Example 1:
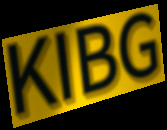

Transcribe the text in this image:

KIBG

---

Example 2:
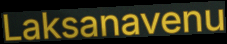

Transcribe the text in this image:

Laksanavenu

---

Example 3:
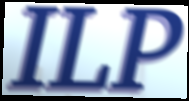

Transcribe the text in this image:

ILP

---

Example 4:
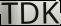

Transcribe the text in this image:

TDK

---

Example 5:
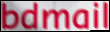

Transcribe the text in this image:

bdmail